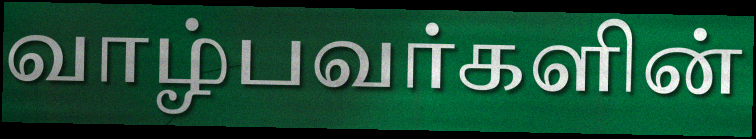
வாழ்பவர்களின்